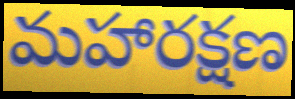
మహారక్షణ